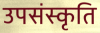
उपसंस्कृति